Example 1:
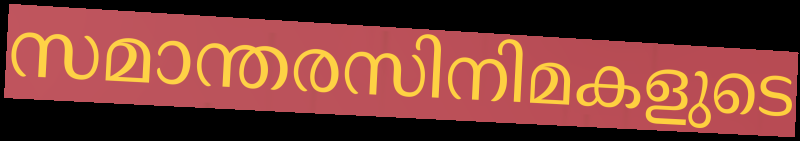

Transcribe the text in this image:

സമാന്തരസിനിമകളുടെ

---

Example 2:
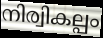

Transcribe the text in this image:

നിര്വികല്പം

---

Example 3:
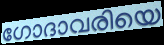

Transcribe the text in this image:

ഗോദാവരിയെ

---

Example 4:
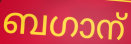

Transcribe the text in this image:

ബഗാന്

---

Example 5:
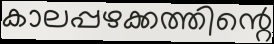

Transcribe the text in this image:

കാലപ്പഴക്കത്തിന്റെ